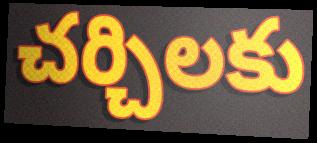
చర్చిలకు